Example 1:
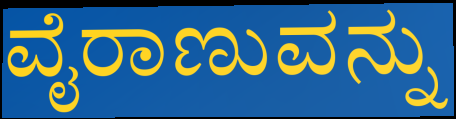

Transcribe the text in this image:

ವೈರಾಣುವನ್ನು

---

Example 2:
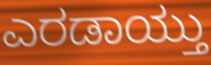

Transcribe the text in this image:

ಎರಡಾಯ್ತು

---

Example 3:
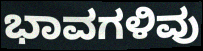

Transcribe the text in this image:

ಭಾವಗಳಿವು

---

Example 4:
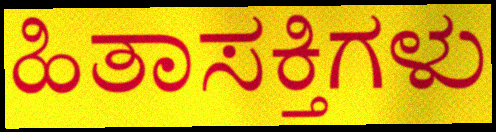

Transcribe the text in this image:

ಹಿತಾಸಕ್ತಿಗಳು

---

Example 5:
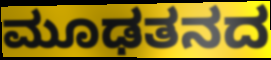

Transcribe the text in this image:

ಮೂಢತನದ